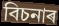
বিচনাৰ